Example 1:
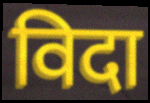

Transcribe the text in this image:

विदा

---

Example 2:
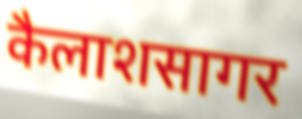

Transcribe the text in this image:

कैलाशसागर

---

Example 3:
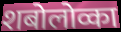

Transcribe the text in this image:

शबोलोव्का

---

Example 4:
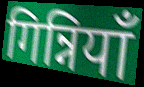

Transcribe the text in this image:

गिन्नियाँ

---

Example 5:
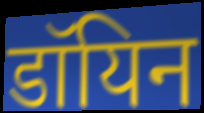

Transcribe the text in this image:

डॉयिन